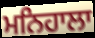
ਮਨਿਹਾਲਾ